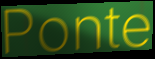
Ponte